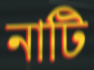
নাটি